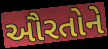
ઔરતોને